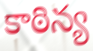
కాఠిన్య